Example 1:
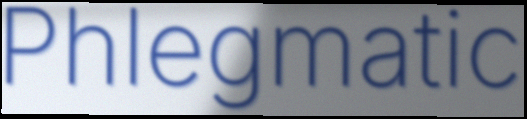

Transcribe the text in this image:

Phlegmatic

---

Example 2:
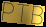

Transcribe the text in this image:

PTB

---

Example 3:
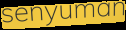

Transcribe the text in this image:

senyuman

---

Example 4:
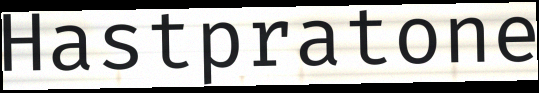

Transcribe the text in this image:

Hastpratone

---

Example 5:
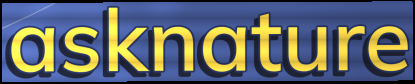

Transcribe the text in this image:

asknature